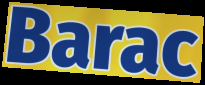
Barac